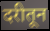
दरीतून